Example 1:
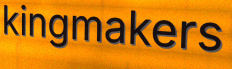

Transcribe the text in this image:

kingmakers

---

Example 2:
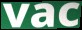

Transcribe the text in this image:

vac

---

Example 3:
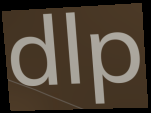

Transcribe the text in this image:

dlp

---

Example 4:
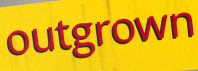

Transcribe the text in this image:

outgrown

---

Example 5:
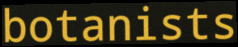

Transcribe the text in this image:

botanists